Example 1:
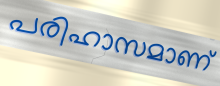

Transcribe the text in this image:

പരിഹാസമാണ്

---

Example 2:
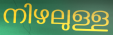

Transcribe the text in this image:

നിഴലുള്ള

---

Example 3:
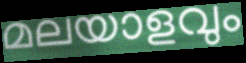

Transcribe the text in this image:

മലയാളവും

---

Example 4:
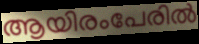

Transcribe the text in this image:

ആയിരംപേരിൽ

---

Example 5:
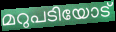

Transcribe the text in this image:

മറുപടിയോട്